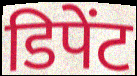
डिपेंट